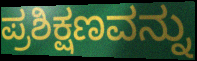
ಪ್ರಶಿಕ್ಷಣವನ್ನು